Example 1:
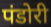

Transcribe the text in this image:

पंडोरी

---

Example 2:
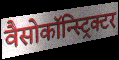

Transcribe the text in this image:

वैसोकॉन्स्ट्रिक्टर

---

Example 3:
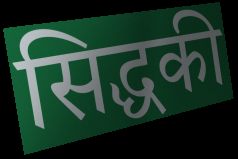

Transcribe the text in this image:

सिद्धकी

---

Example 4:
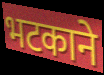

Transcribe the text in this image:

भटकाने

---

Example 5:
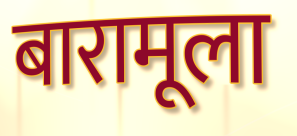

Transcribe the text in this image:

बारामूला